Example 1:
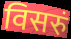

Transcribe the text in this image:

विसरुं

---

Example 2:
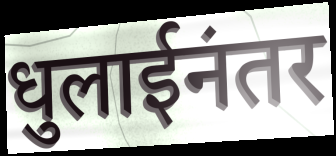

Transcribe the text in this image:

धुलाईनंतर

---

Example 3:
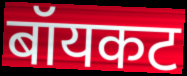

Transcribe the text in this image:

बॉयकट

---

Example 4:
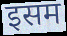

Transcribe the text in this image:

इसम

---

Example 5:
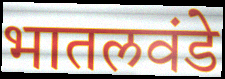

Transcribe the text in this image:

भातलवंडे